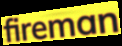
fireman